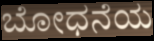
ಬೋಧನೆಯ